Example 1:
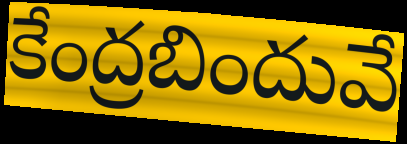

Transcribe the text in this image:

కేంద్రబిందువే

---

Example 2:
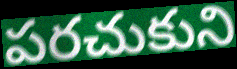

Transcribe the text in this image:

పరచుకుని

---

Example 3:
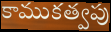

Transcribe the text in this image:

కాముకత్వపు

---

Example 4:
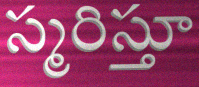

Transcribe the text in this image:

స్మరిస్తూ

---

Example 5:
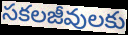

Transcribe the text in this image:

సకలజీవులకు